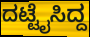
ದಟ್ಟೈಸಿದ್ದ